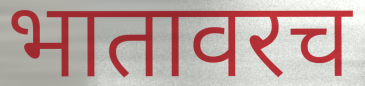
भातावरच